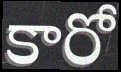
కారో